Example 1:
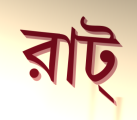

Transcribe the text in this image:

রাট্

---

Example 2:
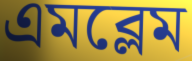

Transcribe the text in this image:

এমব্লেম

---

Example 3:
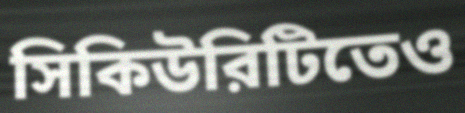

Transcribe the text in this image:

সিকিউরিটিতেও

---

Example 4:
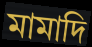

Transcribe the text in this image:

মামাদি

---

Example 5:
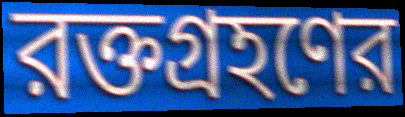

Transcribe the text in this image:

রক্তগ্রহণের